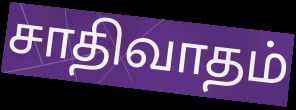
சாதிவாதம்